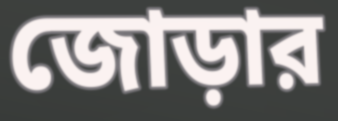
জোড়ার